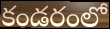
కండరంలో